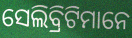
ସେଲିବ୍ରିଟିମାନେ